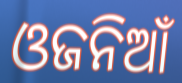
ଓଜନିଆଁ